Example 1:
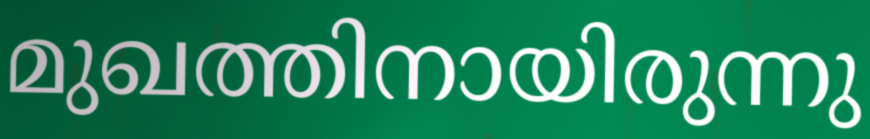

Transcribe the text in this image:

മുഖത്തിനായിരുന്നു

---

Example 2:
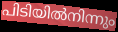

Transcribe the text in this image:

പിടിയിൽനിന്നും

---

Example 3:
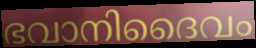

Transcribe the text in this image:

ഭവാനിദൈവം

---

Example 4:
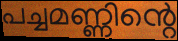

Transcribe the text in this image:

പച്ചമണ്ണിന്റെ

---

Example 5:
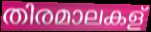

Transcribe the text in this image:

തിരമാലകള്